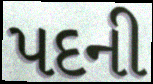
પદની